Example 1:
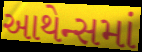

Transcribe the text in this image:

આથેન્સમાં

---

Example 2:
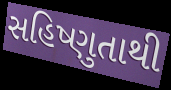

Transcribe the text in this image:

સહિષ્ણુતાથી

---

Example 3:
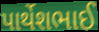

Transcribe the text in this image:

પાર્થેશભાઈ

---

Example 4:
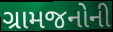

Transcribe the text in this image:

ગ્રામજનોની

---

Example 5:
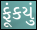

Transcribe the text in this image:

ફૂંકયું